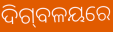
ଦିଗ୍‍ବଳୟରେ